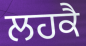
ਲਹਕੈ